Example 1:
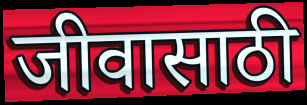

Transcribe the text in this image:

जीवासाठी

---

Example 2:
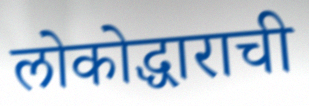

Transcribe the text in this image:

लोकोद्धाराची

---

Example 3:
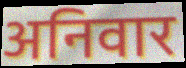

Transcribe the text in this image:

अनिवार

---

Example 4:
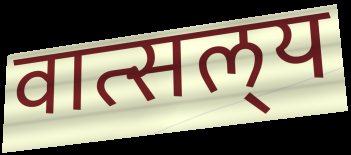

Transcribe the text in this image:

वात्सल्य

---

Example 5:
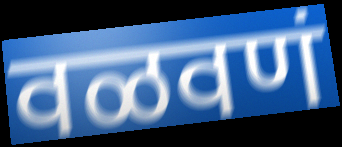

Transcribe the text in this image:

वळवणं